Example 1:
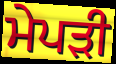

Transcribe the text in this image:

ਮੇਪੜੀ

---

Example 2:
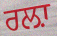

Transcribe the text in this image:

ਰਲ਼ਾ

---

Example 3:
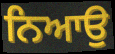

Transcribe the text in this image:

ਨਿਆਉ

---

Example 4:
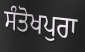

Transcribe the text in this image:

ਸੰਤੋਖਪੁਰਾ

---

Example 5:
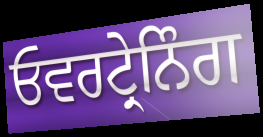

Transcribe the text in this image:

ਓਵਰਟ੍ਰੇਨਿੰਗ